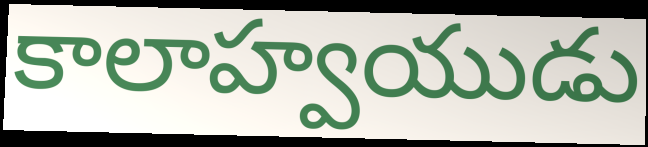
కాలాహ్వయుడు